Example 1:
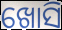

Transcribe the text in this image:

ଖୋସି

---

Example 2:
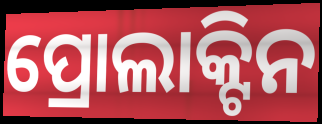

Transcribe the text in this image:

ପ୍ରୋଲାକ୍ଟିନ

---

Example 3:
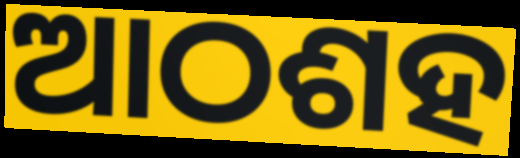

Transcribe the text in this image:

ଆଠଶହ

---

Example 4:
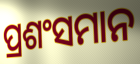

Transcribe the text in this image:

ପ୍ରଶଂସମାନ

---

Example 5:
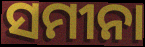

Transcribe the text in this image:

ସମୀନା